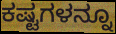
ಕಷ್ಟಗಳನ್ನೂ